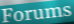
Forums